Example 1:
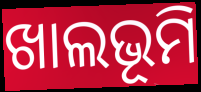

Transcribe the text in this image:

ଖାଲଭୂମି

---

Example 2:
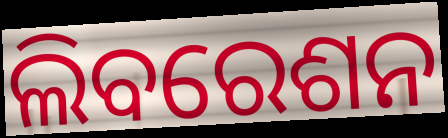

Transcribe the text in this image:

ଲିବରେଶନ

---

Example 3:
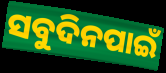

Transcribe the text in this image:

ସବୁଦିନପାଇଁ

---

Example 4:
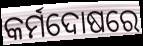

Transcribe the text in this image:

କର୍ମଦୋଷରେ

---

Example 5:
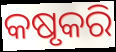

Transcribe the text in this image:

କଷୃକରି